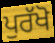
ਪੁਰੱਖੋ